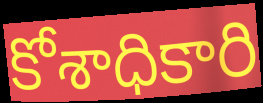
కోశాధికారి